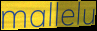
mallelu